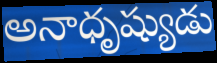
అనాధృష్యుడు